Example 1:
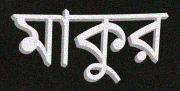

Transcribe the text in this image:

মাকুর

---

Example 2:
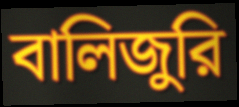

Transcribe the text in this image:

বালিজুরি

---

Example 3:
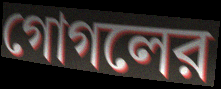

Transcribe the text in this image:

গোগলের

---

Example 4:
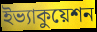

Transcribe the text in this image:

ইভ্যাকুয়েশন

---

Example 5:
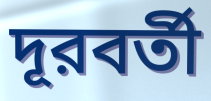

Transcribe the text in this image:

দূরবর্তী